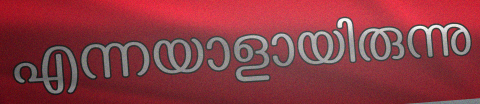
എന്നയാളായിരുന്നു